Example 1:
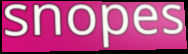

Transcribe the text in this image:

snopes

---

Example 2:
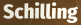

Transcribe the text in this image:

Schilling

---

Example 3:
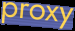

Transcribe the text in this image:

proxy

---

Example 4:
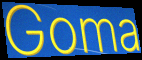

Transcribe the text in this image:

Goma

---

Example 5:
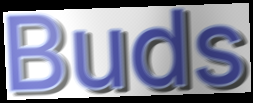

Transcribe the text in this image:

Buds